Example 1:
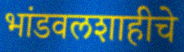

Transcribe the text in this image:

भांडवलशाहीचे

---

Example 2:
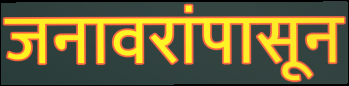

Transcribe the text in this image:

जनावरांपासून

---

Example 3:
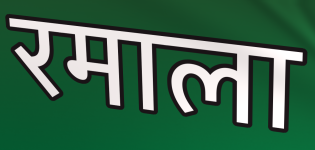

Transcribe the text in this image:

रमाला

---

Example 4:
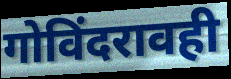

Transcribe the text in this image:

गोविंदरावही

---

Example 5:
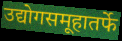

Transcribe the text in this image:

उद्योगसमूहातर्फे